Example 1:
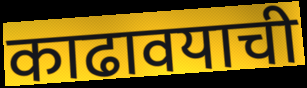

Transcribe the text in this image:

काढावयाची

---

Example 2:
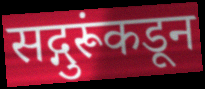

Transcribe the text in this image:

सद्गुरूंकडून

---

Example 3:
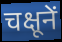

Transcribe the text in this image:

चक्षूनें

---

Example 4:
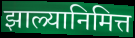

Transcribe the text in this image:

झाल्यानिमित्त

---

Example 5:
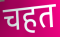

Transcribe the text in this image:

चहत